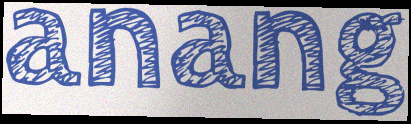
anang